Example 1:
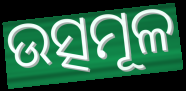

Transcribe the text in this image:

ଉତ୍ସମୂଳ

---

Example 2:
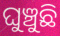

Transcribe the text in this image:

ଘୁଞ୍ଚୁଛି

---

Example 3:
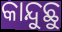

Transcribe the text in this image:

କାନ୍ଦୁଛୁ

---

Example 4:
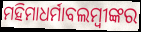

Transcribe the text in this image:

ମହିମାଧର୍ମାବଲମ୍ବୀଙ୍କର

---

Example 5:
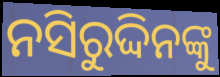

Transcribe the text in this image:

ନସିରୁଦ୍ଦିନଙ୍କୁ